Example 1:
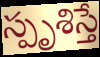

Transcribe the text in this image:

స్పృశిస్తే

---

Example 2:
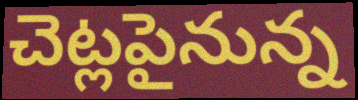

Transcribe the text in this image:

చెట్లపైనున్న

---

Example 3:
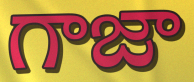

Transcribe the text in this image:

గాజా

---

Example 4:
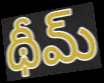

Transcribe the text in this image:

థీమ్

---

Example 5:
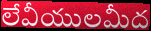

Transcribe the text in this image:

లేవీయులమీద